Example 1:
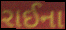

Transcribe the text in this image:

રાઈના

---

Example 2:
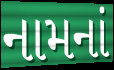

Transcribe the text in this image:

નામનાં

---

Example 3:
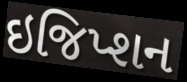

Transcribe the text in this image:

ઇજિપ્શન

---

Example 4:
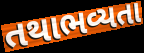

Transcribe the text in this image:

તથાભવ્યતા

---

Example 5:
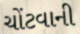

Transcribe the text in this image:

ચોંટવાની